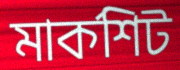
মার্কশিট